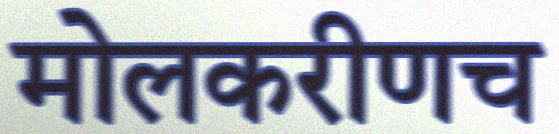
मोलकरीणच